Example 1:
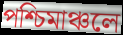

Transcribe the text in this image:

পশ্চিমাঞ্চলে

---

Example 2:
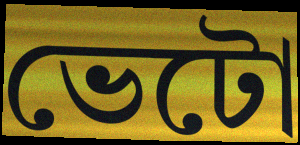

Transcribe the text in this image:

ভেটো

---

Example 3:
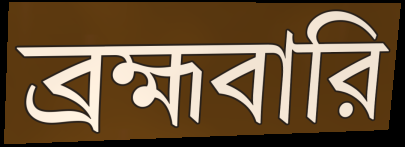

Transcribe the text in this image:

ব্রহ্মবারি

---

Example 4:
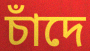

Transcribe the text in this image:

চাঁদে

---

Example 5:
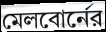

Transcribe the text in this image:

মেলবোর্নের